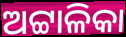
ଅଟ୍ଟାଳିକା